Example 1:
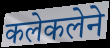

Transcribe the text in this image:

कलेकलेने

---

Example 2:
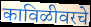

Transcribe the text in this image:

काविळीवरचे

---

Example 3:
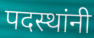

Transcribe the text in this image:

पदस्थांनी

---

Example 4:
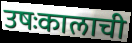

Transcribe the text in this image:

उषःकालाची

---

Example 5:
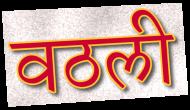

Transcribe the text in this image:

वठली